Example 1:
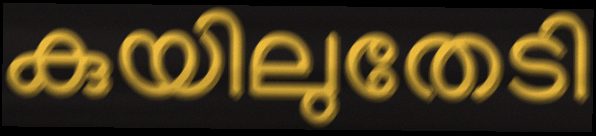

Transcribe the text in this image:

കുയിലുതേടി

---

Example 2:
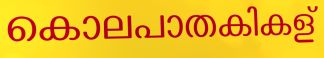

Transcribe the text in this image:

കൊലപാതകികള്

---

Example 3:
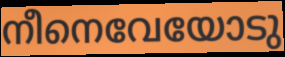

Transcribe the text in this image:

നീനെവേയോടു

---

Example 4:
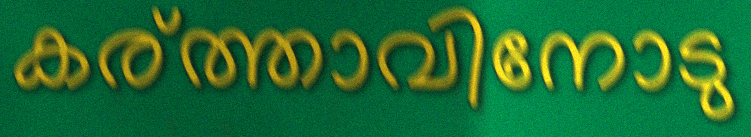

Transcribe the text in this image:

കര്ത്താവിനോടു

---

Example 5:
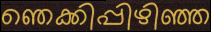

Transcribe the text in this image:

ഞെക്കിപ്പിഴിഞ്ഞ